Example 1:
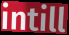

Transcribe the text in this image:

intill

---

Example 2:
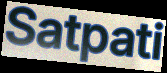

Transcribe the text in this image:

Satpati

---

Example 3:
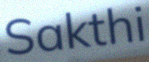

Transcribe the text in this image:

Sakthi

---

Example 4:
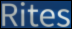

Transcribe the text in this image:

Rites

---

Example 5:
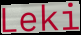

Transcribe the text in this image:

Leki